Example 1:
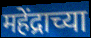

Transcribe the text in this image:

महेंद्राच्या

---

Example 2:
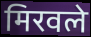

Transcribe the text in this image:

मिरवले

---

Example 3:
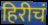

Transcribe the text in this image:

हिरीचं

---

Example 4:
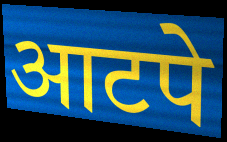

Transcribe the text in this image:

आटपे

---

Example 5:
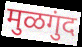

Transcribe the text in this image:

मुळगुंद